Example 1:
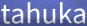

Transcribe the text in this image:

tahuka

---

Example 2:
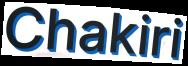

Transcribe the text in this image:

Chakiri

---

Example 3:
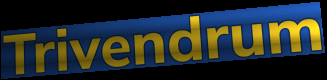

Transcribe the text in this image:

Trivendrum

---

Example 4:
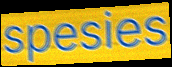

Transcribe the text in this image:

spesies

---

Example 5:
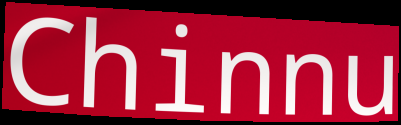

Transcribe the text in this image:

Chinnu